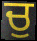
ਚੁ